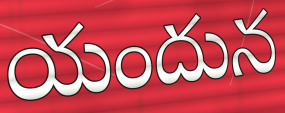
యందున